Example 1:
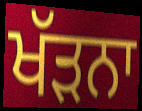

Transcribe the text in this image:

ਖੱੜਨਾ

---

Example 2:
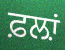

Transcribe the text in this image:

ਫ਼ਲ਼ਾਂ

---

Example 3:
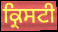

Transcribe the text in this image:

ਕ੍ਰਿਸਟੀ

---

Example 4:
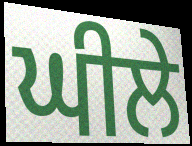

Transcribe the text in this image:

ਘੀਲੇ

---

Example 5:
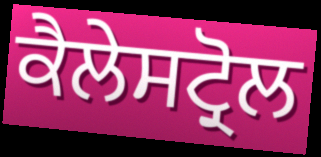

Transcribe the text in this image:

ਕੈਲੇਸਟ੍ਰੋਲ